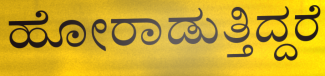
ಹೋರಾಡುತ್ತಿದ್ದರೆ